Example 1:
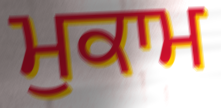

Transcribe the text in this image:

ਮੁਕਾਮ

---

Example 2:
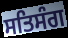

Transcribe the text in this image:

ਸਤਿਸੰਗ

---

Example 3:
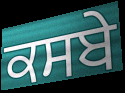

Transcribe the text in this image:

ਕਸਬੇ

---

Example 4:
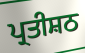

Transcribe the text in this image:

ਪ੍ਰਤੀਸ਼ਠ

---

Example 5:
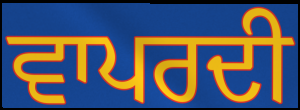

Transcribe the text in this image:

ਵਾਪਰਦੀ